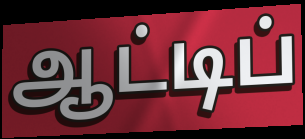
ஆட்டிப்